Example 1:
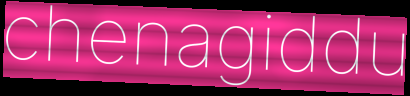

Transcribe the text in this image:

chenagiddu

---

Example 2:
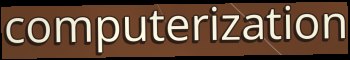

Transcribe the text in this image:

computerization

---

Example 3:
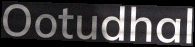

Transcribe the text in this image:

Ootudhal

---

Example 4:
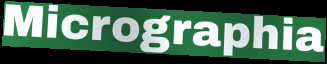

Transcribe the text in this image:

Micrographia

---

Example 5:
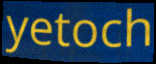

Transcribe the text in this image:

yetoch